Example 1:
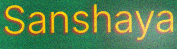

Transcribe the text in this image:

Sanshaya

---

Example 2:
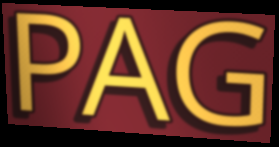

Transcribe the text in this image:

PAG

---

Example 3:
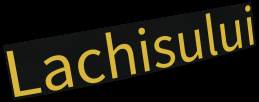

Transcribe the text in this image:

Lachisului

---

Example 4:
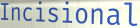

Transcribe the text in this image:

Incisional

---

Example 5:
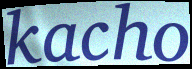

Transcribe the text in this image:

kacho